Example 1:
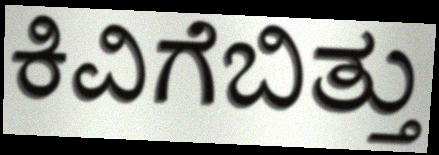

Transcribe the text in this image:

ಕಿವಿಗೆಬಿತ್ತು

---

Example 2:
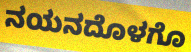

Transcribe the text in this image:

ನಯನದೊಳಗೊ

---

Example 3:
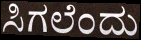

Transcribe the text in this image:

ಸಿಗಲೆಂದು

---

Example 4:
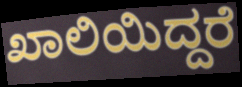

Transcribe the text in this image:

ಖಾಲಿಯಿದ್ದರೆ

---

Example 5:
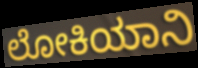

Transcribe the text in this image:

ಲೋಕಿಯಾನಿ